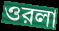
ওরলা